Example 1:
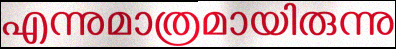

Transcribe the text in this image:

എന്നുമാത്രമായിരുന്നു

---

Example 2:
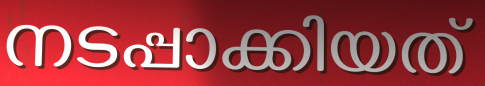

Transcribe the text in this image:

നടപ്പാക്കിയത്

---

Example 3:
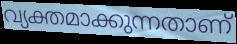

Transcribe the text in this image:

വ്യക്തമാക്കുന്നതാണ്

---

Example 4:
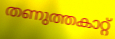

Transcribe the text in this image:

തണുത്തകാറ്റ്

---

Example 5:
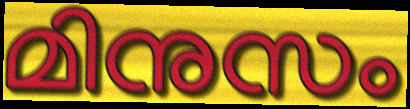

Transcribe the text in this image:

മിനുസം